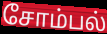
சோம்பல்